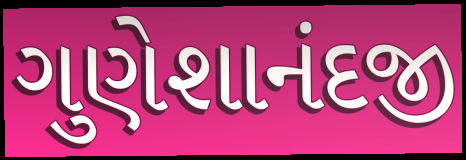
ગુણેશાનંદજી